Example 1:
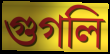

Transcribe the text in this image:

গুগলি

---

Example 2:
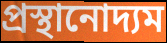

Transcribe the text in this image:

প্রস্থানোদ্যম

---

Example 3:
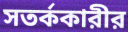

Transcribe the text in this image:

সতর্ককারীর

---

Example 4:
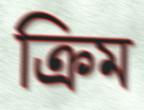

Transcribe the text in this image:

ক্রিম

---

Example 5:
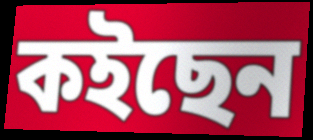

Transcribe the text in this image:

কইছেন